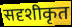
सदृशीकृत